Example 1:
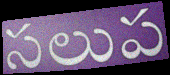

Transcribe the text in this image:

సలుప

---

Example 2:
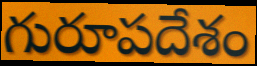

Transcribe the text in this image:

గురూపదేశం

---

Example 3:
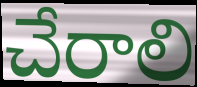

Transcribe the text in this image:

చేరాలి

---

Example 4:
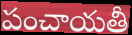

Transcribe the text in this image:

పంచాయతీ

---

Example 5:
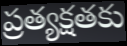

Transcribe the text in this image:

ప్రత్యక్షతకు